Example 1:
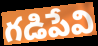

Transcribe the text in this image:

గడిపేవి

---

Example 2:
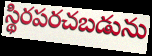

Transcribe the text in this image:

స్థిరపరచబడును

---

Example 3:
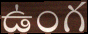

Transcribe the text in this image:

ఉంగ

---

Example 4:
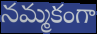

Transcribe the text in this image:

నమ్మకంగా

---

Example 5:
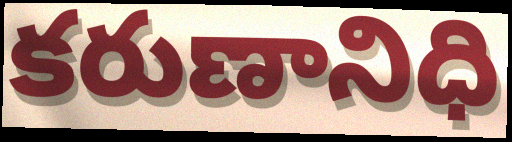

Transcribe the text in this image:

కరుణానిధి